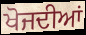
ਖੋਜਦੀਆਂ